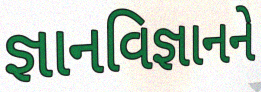
જ્ઞાનવિજ્ઞાનને